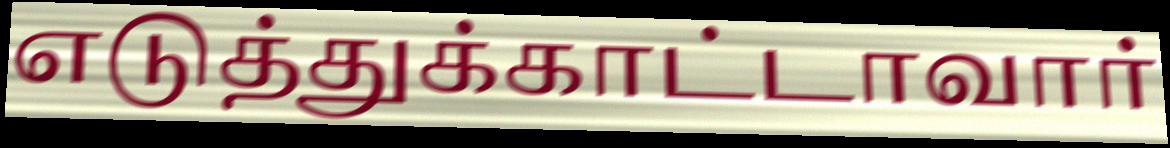
எடுத்துக்காட்டாவார்